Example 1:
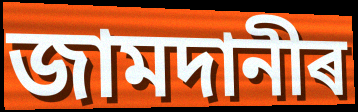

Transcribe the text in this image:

জামদানীৰ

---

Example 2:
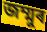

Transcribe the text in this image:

জম্মুৰ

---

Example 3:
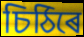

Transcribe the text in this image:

চিঠিৰে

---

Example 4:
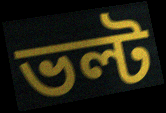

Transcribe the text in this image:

ভল্ট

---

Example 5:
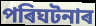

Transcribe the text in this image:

পৰিঘটনাৰ